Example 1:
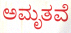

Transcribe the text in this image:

ಅಮೃತವೆ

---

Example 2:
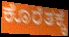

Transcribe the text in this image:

ಕೊರೆತಕ್ಕೆ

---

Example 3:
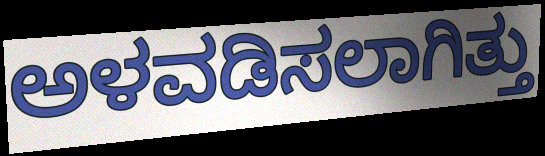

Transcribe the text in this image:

ಅಳವಡಿಸಲಾಗಿತ್ತು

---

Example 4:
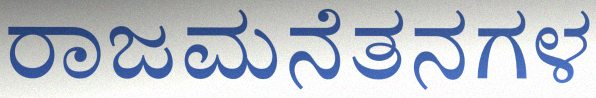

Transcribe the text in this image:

ರಾಜಮನೆತನಗಳ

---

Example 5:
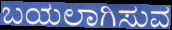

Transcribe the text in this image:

ಬಯಲಾಗಿಸುವ